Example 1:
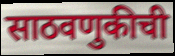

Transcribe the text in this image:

साठवणुकीची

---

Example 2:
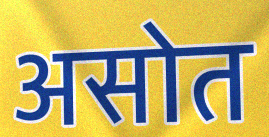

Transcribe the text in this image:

असोत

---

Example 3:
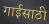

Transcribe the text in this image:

गाईसाठी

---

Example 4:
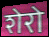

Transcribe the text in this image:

शेरो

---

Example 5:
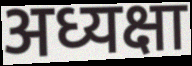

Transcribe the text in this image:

अध्यक्षा